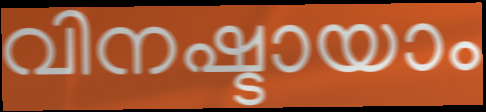
വിനഷ്ടായാം